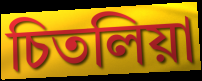
চিতলিয়া